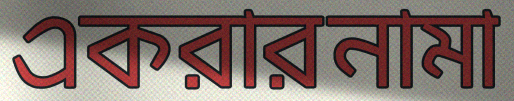
একরারনামা